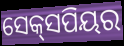
ସେକ୍‌ସପିୟର